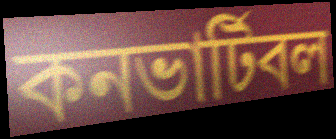
কনভার্টিবল